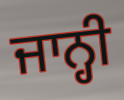
ਜਾਨ੍ਹੀ